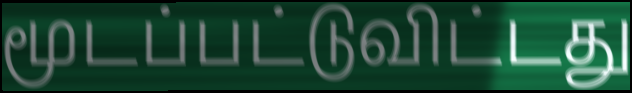
மூடப்பட்டுவிட்டது